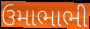
ઉમાભાભી